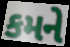
કમને